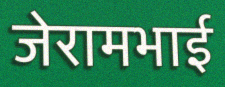
जेरामभाई